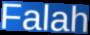
Falah